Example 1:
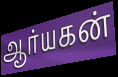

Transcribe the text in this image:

ஆர்யகன்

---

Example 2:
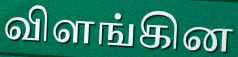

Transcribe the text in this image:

விளங்கின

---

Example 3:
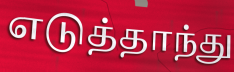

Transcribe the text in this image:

எடுத்தாந்து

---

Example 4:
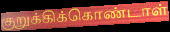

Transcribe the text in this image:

குறுக்கிக்கொண்டாள்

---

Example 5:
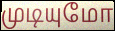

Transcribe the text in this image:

முடியுமோ